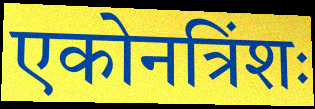
एकोनत्रिंशः